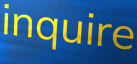
inquire